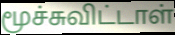
மூச்சுவிட்டாள்